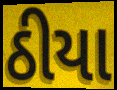
ઠીયા